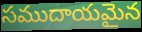
సముదాయమైన